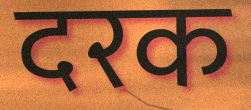
दरक